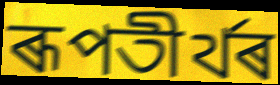
ৰূপতীৰ্থৰ